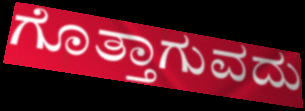
ಗೊತ್ತಾಗುವದು